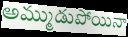
అమ్ముడుపోయినా